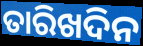
ତାରିଖଦିନ